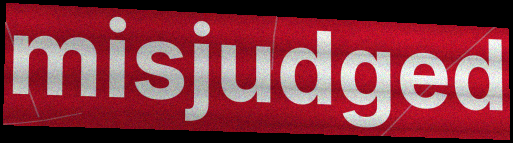
misjudged